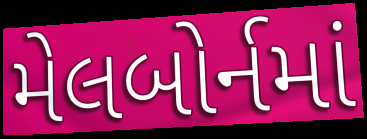
મેલબોર્નમાં